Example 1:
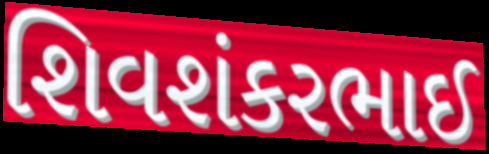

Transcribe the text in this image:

શિવશંકરભાઈ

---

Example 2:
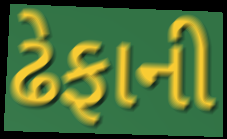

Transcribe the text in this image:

ઢેફાની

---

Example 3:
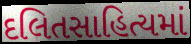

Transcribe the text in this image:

દલિતસાહિત્યમાં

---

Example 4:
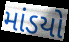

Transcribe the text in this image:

માંડયો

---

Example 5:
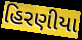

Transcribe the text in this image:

હિરણીયા